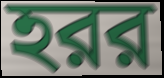
হরর